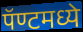
पॅण्टमध्ये